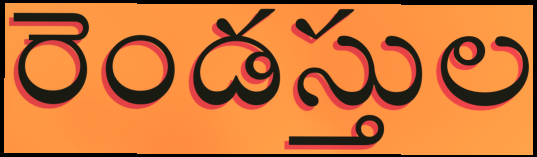
రెండస్తుల